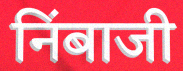
निंबाजी